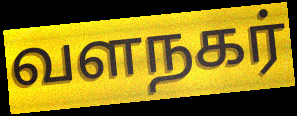
வளநகர்